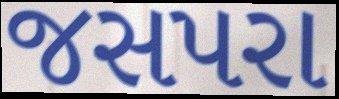
જસપરા